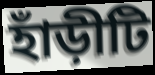
হাঁড়ীটি